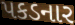
પકડનાર